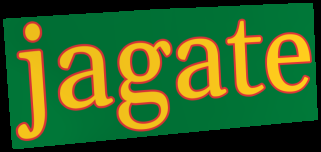
jagate